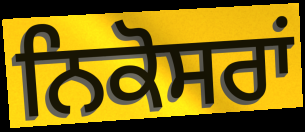
ਨਿਕੋਸਰਾਂ